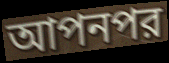
আপনপর